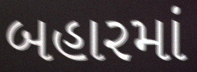
બહારમાં